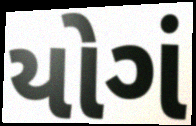
યોગં